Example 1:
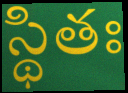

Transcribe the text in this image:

స్థితః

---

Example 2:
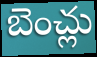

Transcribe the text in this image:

బెంచ్లు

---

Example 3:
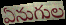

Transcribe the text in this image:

ఏనుగుల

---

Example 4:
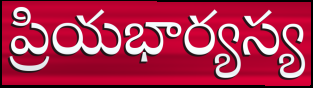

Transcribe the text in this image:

ప్రియభార్యస్య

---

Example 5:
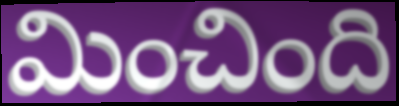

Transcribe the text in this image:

మించింది